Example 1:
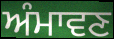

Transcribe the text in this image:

ਅੰਮਾਵਣ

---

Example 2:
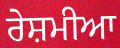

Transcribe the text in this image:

ਰੇਸ਼ਮੀਆ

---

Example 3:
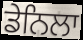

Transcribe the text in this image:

ਡੇਨਿਲਾ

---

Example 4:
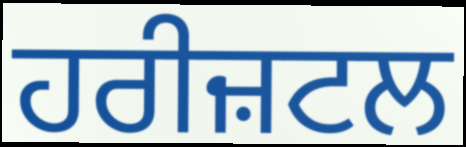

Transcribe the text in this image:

ਹਰੀਜ਼ਟਲ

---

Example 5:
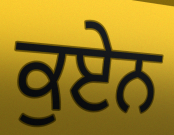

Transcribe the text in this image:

ਕੁਏਨ